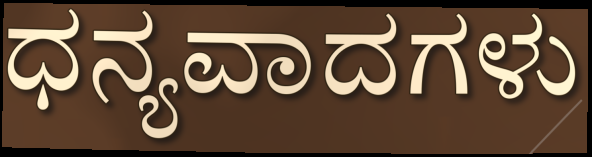
ಧನ್ಯವಾದಗಳು